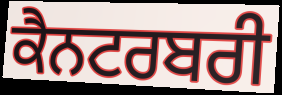
ਕੈਨਟਰਬਰੀ